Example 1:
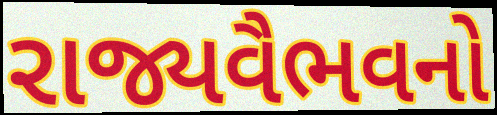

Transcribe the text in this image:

રાજ્યવૈભવનો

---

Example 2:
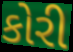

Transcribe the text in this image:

કોરી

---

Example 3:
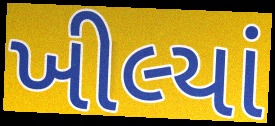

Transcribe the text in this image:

ખીલ્યાં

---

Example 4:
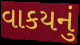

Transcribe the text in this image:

વાકયનું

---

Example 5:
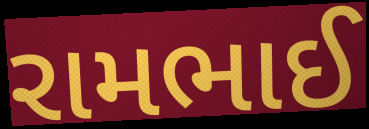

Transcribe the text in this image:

રામભાઈ